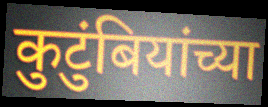
कुटुंबियांच्या